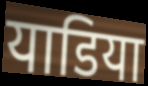
याडिया